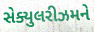
સેક્યુલરીઝમને